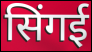
सिंगई